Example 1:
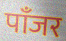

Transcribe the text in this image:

पाँजर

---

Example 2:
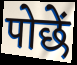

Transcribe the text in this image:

पोछें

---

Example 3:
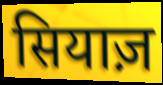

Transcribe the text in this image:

सियाज़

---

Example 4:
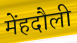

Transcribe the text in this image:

मेंहदौली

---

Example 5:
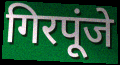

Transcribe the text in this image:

गिरपूंजे